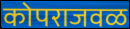
कोपराजवळ